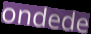
ondede